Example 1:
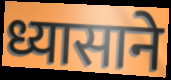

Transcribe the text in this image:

ध्यासाने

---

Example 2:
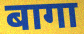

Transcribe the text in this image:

बागा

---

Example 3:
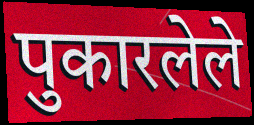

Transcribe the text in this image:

पुकारलेले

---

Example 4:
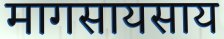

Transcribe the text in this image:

मागसायसाय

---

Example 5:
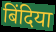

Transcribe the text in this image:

बिंदिया